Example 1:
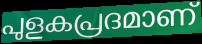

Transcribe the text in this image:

പുളകപ്രദമാണ്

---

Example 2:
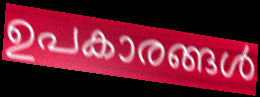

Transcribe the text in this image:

ഉപകാരങ്ങൾ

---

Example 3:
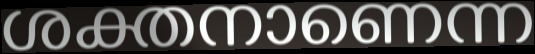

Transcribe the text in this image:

ശക്തനാണെന്ന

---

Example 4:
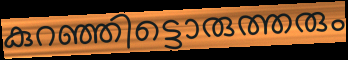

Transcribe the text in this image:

കുറഞ്ഞിട്ടൊരുത്തരും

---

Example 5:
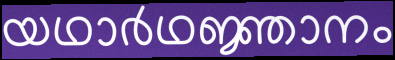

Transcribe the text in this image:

യഥാർഥജ്ഞാനം